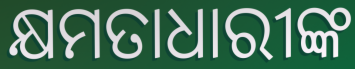
କ୍ଷମତାଧାରୀଙ୍କ